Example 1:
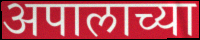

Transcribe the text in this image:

अपालाच्या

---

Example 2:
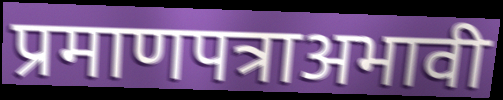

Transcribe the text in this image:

प्रमाणपत्राअभावी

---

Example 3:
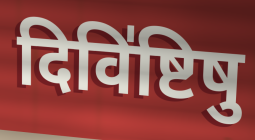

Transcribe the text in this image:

दिवि॑ष्टिषु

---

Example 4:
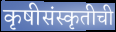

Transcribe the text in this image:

कृषीसंस्कृतीची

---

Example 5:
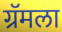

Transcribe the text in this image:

ग्रॅमला